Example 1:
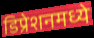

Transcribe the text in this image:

डिप्रेशनमध्ये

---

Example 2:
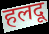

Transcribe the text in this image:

हलदू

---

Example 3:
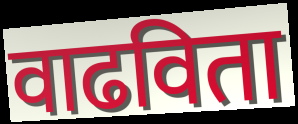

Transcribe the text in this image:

वाढविता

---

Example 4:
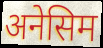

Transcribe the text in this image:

अनेसिम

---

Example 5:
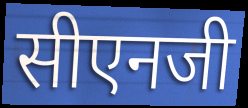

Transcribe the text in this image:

सीएनजी